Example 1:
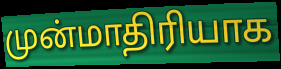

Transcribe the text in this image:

முன்மாதிரியாக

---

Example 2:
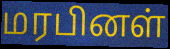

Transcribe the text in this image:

மரபினள்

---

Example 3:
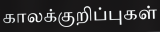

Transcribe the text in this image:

காலக்குறிப்புகள்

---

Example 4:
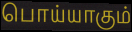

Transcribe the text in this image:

பொய்யாகும்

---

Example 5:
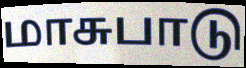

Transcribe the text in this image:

மாசுபாடு